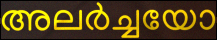
അലർച്ചയോ